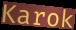
Karok